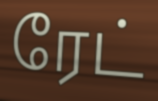
ரேட்